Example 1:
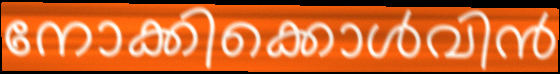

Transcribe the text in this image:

നോക്കിക്കൊൾവിൻ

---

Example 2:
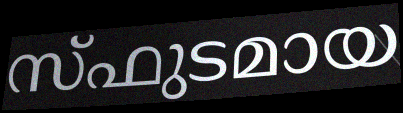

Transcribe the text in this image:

സ്ഫുടമായ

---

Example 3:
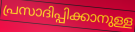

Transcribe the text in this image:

പ്രസാദിപ്പിക്കാനുള്ള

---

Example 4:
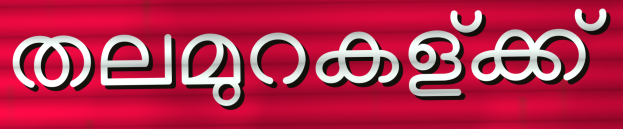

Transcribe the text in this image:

തലമുറകള്ക്ക്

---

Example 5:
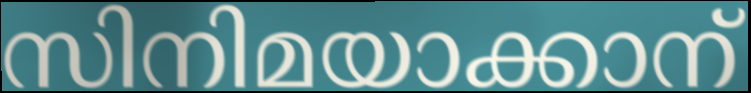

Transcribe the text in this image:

സിനിമയാക്കാന്